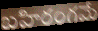
బహిరంగమే